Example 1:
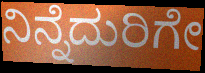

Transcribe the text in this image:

ನಿನ್ನೆದುರಿಗೇ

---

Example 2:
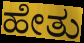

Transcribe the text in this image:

ಹೇತು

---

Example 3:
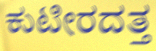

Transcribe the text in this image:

ಕುಟೀರದತ್ತ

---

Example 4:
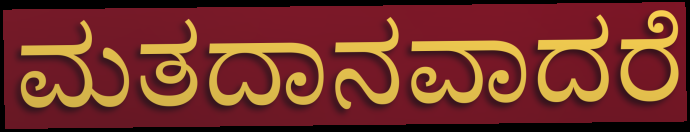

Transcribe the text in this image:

ಮತದಾನವಾದರೆ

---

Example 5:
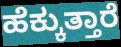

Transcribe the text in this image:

ಹೆಕ್ಕುತ್ತಾರೆ